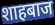
शाहबाज